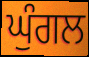
ਘੁੰਗਲ